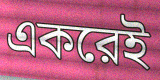
একরেই